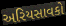
અરિયસાવકો